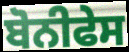
ਬੋਨੀਫੇਸ